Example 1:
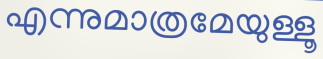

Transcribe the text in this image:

എന്നുമാത്രമേയുള്ളൂ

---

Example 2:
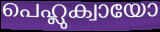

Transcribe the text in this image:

പെഹ്ലുക്വായോ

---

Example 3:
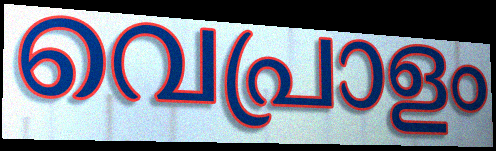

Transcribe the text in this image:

വെപ്രാളം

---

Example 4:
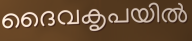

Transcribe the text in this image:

ദൈവകൃപയിൽ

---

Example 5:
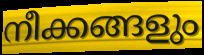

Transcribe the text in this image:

നീക്കങ്ങളും